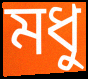
মধু